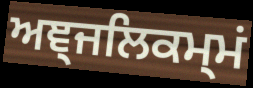
ਅਞ੍ਜਲਿਕਮ੍ਮਂ